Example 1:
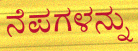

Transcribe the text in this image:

ನೆಪಗಳನ್ನು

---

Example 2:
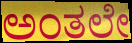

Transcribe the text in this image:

ಅಂತಲೇ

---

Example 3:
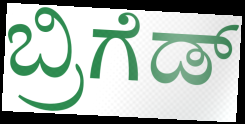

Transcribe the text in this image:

ಬ್ರಿಗೆಡ್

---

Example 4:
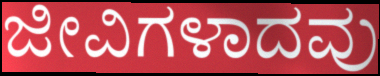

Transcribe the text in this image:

ಜೀವಿಗಳಾದವು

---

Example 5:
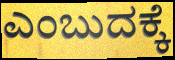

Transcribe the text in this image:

ಎಂಬುದಕ್ಕೆ